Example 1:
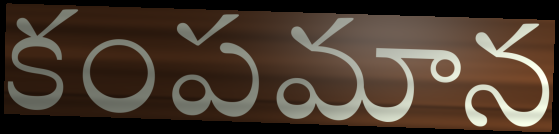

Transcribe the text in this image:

కంపమాన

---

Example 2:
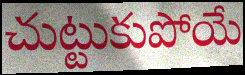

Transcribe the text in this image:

చుట్టుకుపోయే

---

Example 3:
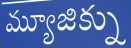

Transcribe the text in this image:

మ్యూజిక్ను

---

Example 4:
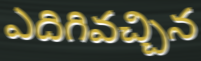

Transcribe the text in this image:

ఎదిగివచ్చిన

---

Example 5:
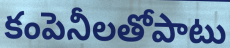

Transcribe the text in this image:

కంపెనీలతోపాటు